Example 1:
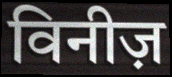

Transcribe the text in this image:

विनीज़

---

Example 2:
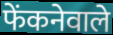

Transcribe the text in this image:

फेंकनेवाले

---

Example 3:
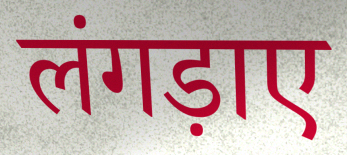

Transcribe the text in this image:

लंगड़ाए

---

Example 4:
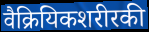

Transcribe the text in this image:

वैक्रियिकशरीरकी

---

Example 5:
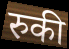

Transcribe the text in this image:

रुकी